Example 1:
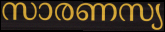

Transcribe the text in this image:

സാരണസ്യ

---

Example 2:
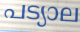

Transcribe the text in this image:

പട്യാല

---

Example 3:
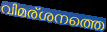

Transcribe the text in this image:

വിമര്ശനത്തെ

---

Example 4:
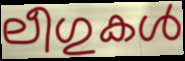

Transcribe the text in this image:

ലീഗുകൾ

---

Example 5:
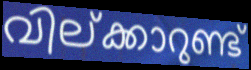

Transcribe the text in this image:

വില്ക്കാറുണ്ട്